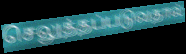
செலுத்தப்படுவதால்